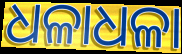
ଧଳାଧଳା